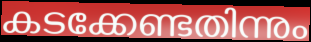
കടക്കേണ്ടതിന്നും